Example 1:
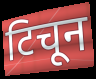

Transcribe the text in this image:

टिचून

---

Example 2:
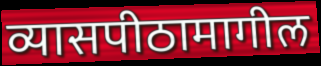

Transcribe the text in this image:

व्यासपीठामागील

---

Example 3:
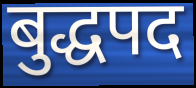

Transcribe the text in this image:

बुद्धपद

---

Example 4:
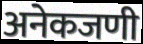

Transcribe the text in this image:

अनेकजणी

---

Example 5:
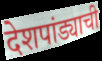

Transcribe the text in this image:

देशपांड्याची